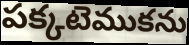
పక్కటెముకను